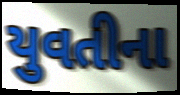
યુવતીના